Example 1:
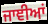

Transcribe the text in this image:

ਜਾਞੀਆਂ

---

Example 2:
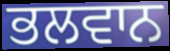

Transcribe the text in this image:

ਭਲਵਾਨ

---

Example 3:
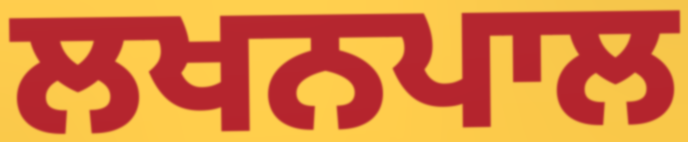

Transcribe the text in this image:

ਲਖਨਪਾਲ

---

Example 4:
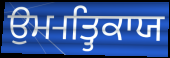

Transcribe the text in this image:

ਉਮ੍ਮਤ੍ਤਿਕਾਯ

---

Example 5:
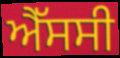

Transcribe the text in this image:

ਐੱਸਸੀ